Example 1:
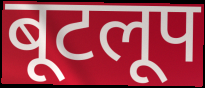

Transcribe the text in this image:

बूटलूप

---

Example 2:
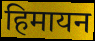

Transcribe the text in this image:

हिमायन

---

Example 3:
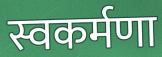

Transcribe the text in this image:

स्वकर्मणा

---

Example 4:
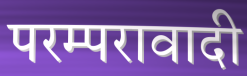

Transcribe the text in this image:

परम्परावादी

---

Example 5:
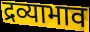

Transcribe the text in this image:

द्रव्याभाव